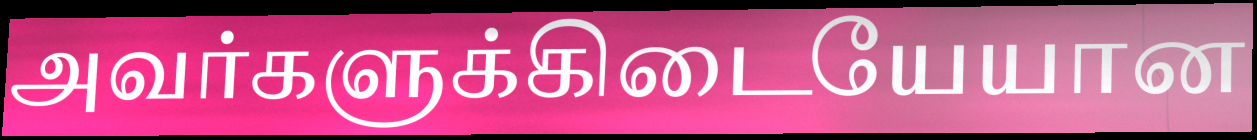
அவர்களுக்கிடையேயான